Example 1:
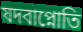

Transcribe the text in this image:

যদবাপ্নোতি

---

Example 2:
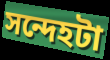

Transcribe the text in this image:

সন্দেহটা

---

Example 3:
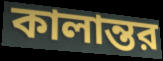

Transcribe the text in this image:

কালান্তর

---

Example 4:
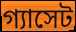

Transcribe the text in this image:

গ্যাসেট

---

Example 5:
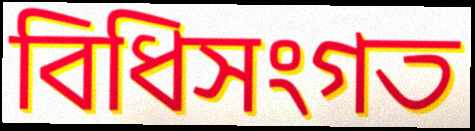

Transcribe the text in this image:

বিধিসংগত